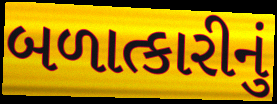
બળાત્કારીનું